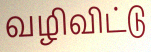
வழிவிட்டு